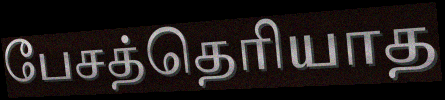
பேசத்தெரியாத